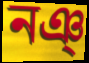
নঞ্